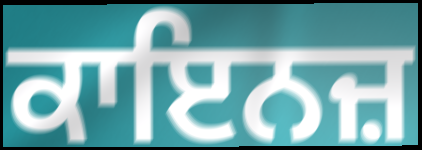
ਕਾਇਨਜ਼